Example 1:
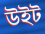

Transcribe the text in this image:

উইট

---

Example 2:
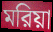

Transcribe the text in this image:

মরিয়া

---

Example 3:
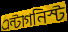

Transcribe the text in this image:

এন্টাগনিস্ট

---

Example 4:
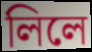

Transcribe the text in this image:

লিলে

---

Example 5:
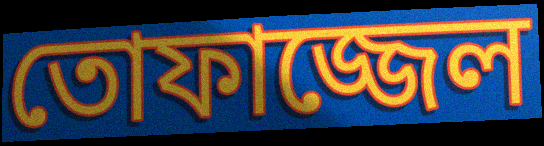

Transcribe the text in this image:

তোফাজ্জেল